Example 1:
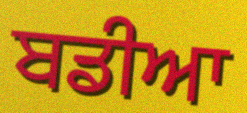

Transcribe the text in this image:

ਬਡੀਆ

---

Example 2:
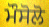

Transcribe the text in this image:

ਮੌਸੋਲੋ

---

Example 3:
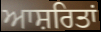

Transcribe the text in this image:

ਆਸ਼ਰਿਤਾਂ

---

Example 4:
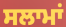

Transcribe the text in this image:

ਸਲਾਮਾਂ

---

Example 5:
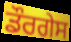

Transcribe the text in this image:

ਡੌਰਗੇਸ